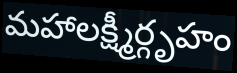
మహాలక్ష్మీర్గృహం